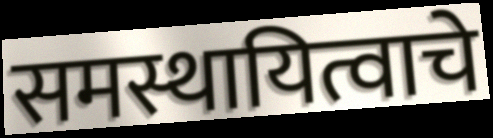
समस्थायित्वाचे